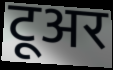
टूअर